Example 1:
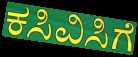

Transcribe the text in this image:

ಕಸಿವಿಸಿಗೆ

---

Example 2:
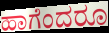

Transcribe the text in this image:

ಹಾಗೆಂದರೂ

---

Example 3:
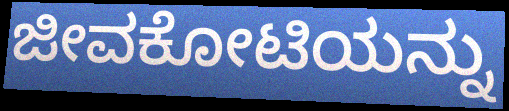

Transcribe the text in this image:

ಜೀವಕೋಟಿಯನ್ನು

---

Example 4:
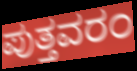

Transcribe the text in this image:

ಪುತ್ತವರಂ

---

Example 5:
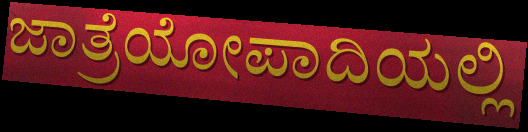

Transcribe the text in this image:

ಜಾತ್ರೆಯೋಪಾದಿಯಲ್ಲಿ